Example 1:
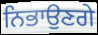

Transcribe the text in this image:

ਨਿਭਾਉਣਗੇ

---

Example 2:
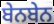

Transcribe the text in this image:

ਬੇਨਬੇਨ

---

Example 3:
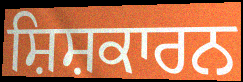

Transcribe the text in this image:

ਸ਼ਿਸ਼ਕਾਰਨ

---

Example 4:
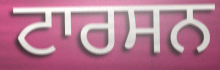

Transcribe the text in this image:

ਟਾਰਸਨ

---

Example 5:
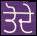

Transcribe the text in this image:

ਤੋਦੇ